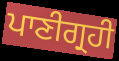
ਪਾਣੀਗ੍ਰਹੀ